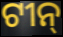
ଟୀନ୍